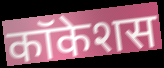
कॉकेशस